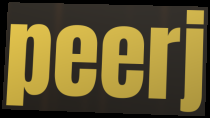
peerj